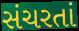
સંચરતાં